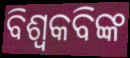
ବିଶ୍ୱକବିଙ୍କ